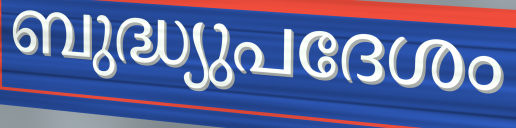
ബുദ്ധ്യുപദേശം